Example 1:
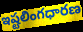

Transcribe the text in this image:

ఇష్టలింగధారణ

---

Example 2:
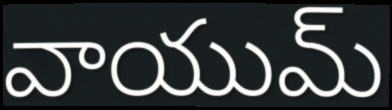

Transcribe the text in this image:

వాయుమ్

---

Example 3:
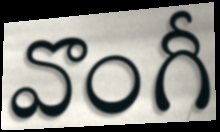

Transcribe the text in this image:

వొంగీ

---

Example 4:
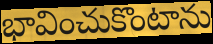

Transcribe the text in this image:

భావించుకొంటాను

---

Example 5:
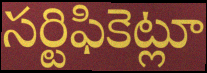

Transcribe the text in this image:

సర్టిఫికెట్లూ